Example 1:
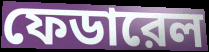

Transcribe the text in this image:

ফেডারেল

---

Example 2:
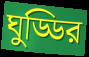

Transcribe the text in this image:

ঘুড্ডির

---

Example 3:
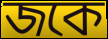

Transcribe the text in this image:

জকে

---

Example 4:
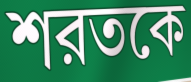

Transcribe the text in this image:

শরতকে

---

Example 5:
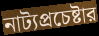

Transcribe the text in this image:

নাট্যপ্রচেষ্টার